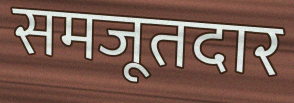
समजूतदार